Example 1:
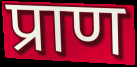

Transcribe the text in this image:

प्राण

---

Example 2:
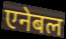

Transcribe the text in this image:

एनेबल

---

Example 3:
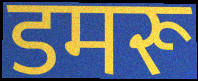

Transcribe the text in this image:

डमरू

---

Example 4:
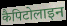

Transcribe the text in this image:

कैपिटोलाइन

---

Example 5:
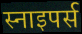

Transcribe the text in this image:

स्नाइपर्स